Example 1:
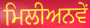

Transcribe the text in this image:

ਮਿਲੀਅਨਵੇਂ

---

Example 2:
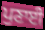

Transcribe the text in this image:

ਪੁਣਾਈ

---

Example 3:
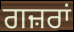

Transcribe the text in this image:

ਗਜ਼ਰਾਂ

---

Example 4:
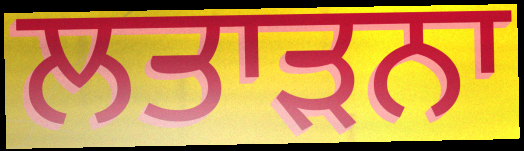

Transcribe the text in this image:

ਲਤਾੜਨਾ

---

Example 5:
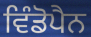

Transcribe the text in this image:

ਵਿੰਡੋਪੈਨ